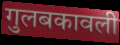
गुलबकावली